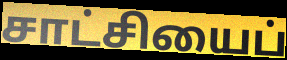
சாட்சியைப்